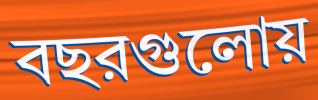
বছরগুলোয়